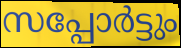
സപ്പോർട്ടും